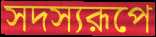
সদস্যরূপে